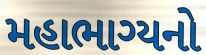
મહાભાગ્યનો